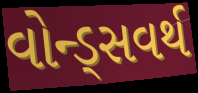
વોન્ડ્સવર્થ